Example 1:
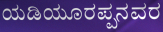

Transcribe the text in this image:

ಯಡಿಯೂರಪ್ಪನವರ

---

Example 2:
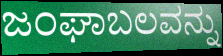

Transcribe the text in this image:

ಜಂಘಾಬಲವನ್ನು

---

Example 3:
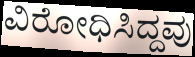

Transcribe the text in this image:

ವಿರೋಧಿಸಿದ್ದವು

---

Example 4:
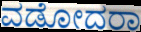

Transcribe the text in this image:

ವಡೋದರಾ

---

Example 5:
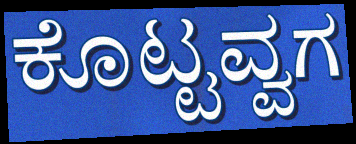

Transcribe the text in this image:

ಕೊಟ್ಟವ್ವಗ